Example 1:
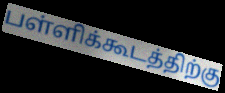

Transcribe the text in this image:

பள்ளிக்கூடத்திற்கு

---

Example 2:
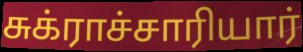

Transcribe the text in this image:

சுக்ராச்சாரியார்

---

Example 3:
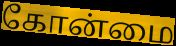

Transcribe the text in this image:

கோன்மை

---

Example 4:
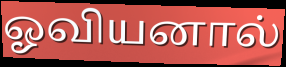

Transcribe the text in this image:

ஓவியனால்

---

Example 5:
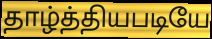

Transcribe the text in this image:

தாழ்த்தியபடியே